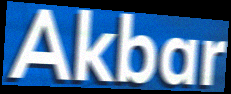
Akbar